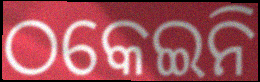
ଠକେଇନି